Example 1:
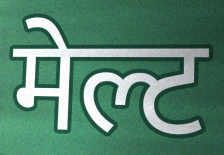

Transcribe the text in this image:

मेल्ट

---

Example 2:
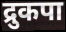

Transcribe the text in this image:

द्रुकपा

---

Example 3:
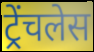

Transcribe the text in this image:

ट्रेंचलेस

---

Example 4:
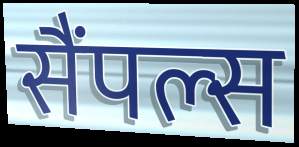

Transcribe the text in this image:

सैंपल्‍स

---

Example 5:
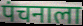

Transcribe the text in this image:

पंचनाला